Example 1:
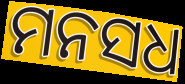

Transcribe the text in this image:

ମନସଧ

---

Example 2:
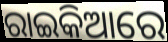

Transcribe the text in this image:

ରାଇକିଆରେ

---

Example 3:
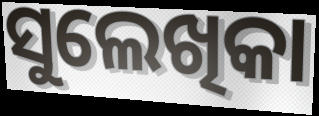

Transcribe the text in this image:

ସୁଲେଖିକା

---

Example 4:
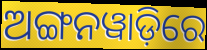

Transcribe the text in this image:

ଅଙ୍ଗନୱାଡ଼ିରେ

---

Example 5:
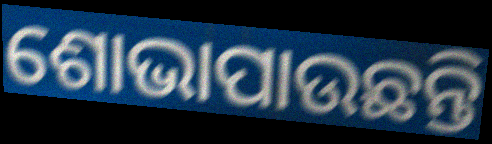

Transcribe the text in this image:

ଶୋଭାପାଉଛନ୍ତି